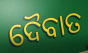
ଦୈବାତ